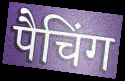
पैचिंग